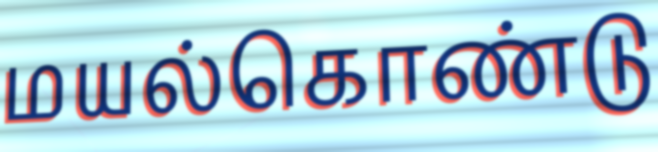
மயல்கொண்டு